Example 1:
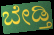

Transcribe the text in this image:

ಬೇಡ್ತಿ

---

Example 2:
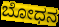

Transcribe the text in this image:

ಬೋಧನ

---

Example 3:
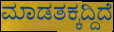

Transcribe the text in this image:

ಮಾಡತಕ್ಕದ್ದಿದೆ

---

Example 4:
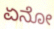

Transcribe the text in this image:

ಏನೋ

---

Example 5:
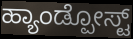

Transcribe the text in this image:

ಹ್ಯಾಂಡ್ಪೋಸ್ಟ್